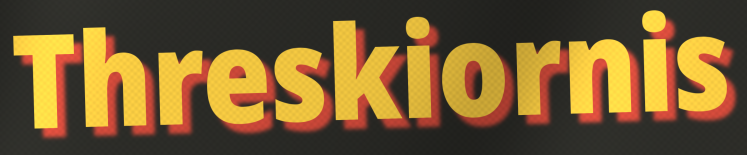
Threskiornis